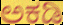
ಅಕಡಿ